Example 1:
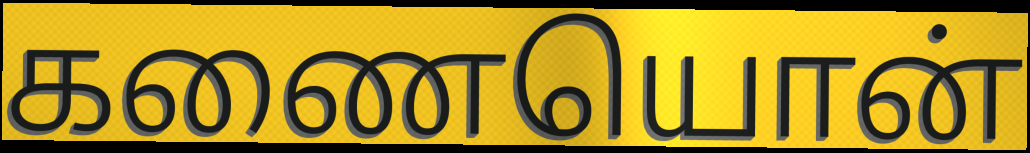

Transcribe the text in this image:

கணையொன்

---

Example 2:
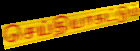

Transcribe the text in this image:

செய்தியாகட்டும்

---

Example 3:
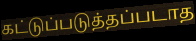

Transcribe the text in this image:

கட்டுப்படுத்தப்படாத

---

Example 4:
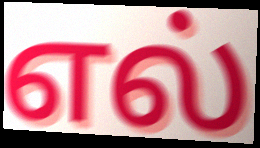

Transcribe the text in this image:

எல்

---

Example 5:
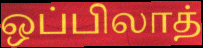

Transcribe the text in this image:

ஒப்பிலாத்